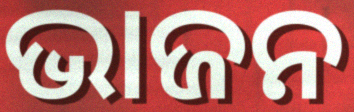
ଭାଜନ